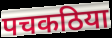
पचकठिया